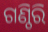
ଗଣ୍ଠିରି